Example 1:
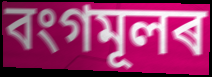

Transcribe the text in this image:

বংগমূলৰ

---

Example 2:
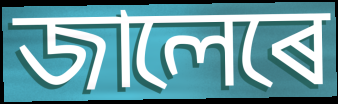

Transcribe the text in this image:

জালেৰে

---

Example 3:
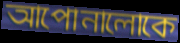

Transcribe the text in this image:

আপোনালোকে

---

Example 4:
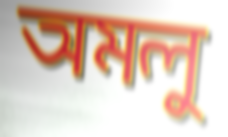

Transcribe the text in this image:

অমলু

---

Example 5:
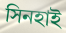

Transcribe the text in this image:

সিনহাই